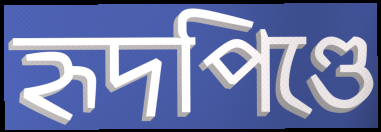
হৃদপিণ্ডে